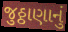
જુઠ્ઠાણાનું